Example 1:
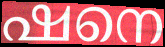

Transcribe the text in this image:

ഷനെ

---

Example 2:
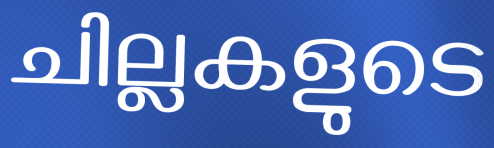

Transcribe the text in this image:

ചില്ലകളുടെ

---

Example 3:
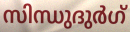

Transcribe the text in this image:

സിന്ധുദുർഗ്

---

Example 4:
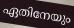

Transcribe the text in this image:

ഏതിനേയും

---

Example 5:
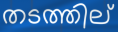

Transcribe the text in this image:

തടത്തില്